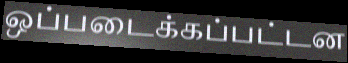
ஒப்படைக்கப்பட்டன